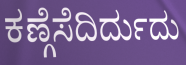
ಕಣ್ಗೆಸೆದಿರ್ದುದು